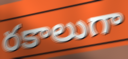
రకాలుగా